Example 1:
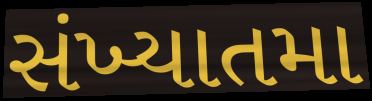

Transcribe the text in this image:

સંખ્યાતમા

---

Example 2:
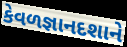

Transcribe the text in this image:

કેવળજ્ઞાનદશાને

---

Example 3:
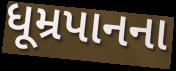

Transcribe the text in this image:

ધૂમ્રપાનના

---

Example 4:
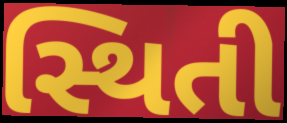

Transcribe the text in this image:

સ્થિતી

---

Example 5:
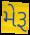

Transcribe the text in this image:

મેરૂ